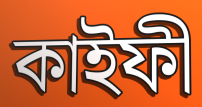
কাইফী